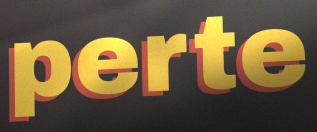
perte